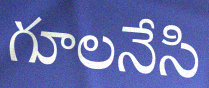
గూలనేసి